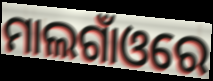
ମାଲଗାଁଓରେ